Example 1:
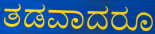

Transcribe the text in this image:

ತಡವಾದರೂ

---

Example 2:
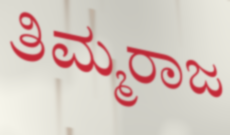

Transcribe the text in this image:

ತಿಮ್ಮರಾಜ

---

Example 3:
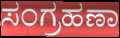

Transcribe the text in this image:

ಸಂಗ್ರಹಣಾ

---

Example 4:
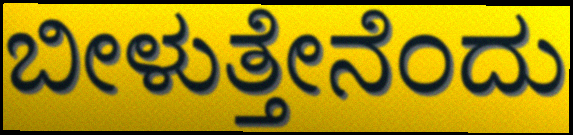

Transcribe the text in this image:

ಬೀಳುತ್ತೇನೆಂದು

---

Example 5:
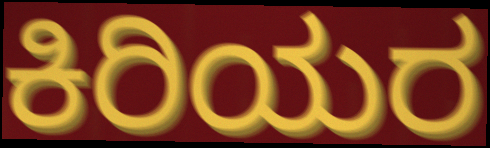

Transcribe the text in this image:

ಕಿರಿಯರ